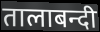
तालाबन्दी